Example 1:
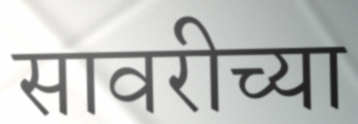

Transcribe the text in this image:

सावरीच्या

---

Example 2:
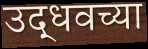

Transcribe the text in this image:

उद्धवच्या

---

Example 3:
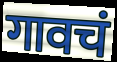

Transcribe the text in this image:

गावचं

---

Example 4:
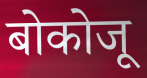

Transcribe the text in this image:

बोकोजू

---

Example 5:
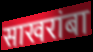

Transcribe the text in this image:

साखरांबा